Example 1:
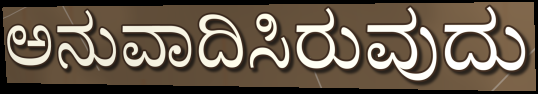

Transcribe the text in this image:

ಅನುವಾದಿಸಿರುವುದು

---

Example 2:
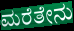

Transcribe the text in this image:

ಮರೆತೇನು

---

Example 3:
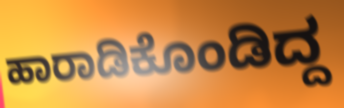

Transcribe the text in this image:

ಹಾರಾಡಿಕೊಂಡಿದ್ದ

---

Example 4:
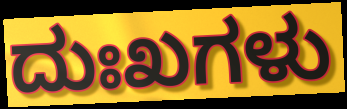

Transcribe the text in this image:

ದುಃಖಗಳು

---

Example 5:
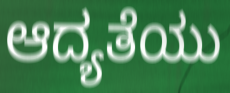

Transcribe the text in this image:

ಆದ್ಯತೆಯು